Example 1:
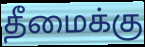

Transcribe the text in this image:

தீமைக்கு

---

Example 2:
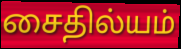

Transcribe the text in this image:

சைதில்யம்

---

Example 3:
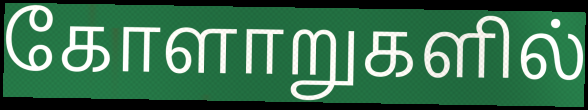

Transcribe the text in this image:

கோளாறுகளில்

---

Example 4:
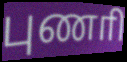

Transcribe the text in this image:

புணரி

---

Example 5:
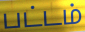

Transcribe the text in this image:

பட்டம்